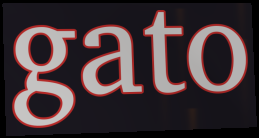
gato